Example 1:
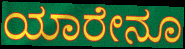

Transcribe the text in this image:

ಯಾರೇನೂ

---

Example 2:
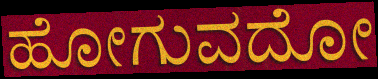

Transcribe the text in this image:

ಹೋಗುವದೋ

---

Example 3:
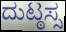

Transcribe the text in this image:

ದುಟ್ಠಸ್ಸ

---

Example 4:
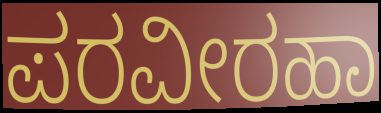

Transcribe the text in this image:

ಪರವೀರಹಾ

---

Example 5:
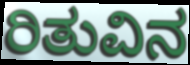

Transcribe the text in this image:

ರಿತುವಿನ